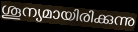
ശൂന്യമായിരിക്കുന്നു